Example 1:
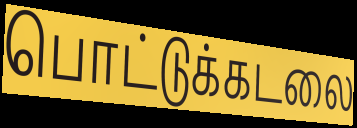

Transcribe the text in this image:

பொட்டுக்கடலை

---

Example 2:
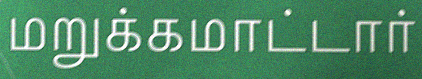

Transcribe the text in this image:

மறுக்கமாட்டார்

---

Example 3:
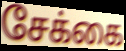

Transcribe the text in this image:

சேக்கை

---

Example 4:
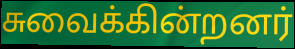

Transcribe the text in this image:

சுவைக்கின்றனர்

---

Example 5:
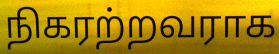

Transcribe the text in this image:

நிகரற்றவராக